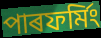
পাৰফৰ্মিং